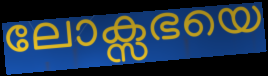
ലോക്സഭയെ